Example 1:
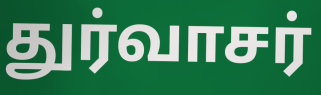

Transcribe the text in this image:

துர்வாசர்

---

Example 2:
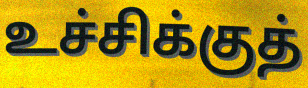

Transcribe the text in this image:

உச்சிக்குத்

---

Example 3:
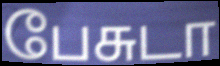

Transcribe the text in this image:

பேசுடா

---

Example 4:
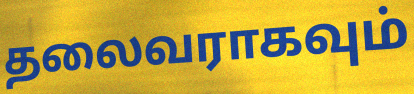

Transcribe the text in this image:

தலைவராகவும்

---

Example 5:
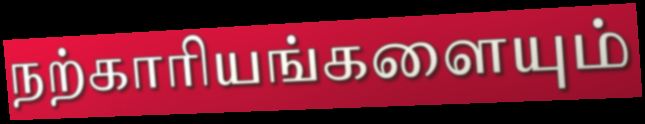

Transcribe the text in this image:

நற்காரியங்களையும்